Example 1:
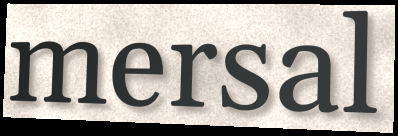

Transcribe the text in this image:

mersal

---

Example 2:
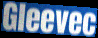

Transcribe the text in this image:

Gleevec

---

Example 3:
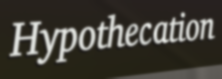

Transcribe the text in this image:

Hypothecation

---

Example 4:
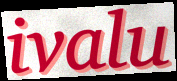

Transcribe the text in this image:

ivalu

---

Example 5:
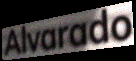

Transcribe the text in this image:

Alvarado